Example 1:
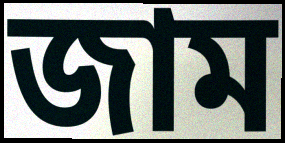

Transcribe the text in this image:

জাম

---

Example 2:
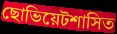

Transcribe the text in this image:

ছোভিয়েটশাসিত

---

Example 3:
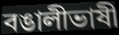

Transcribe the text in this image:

বঙালীভাষী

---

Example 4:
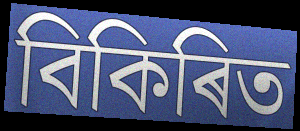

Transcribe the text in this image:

বিকিৰিত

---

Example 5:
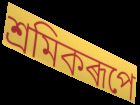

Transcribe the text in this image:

শ্ৰমিকৰূপে